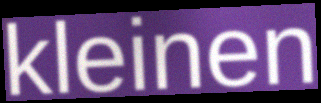
kleinen